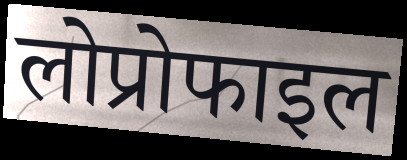
लोप्रोफाइल